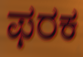
ಫರಕ